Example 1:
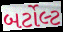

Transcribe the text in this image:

બર્ટોલ્ટ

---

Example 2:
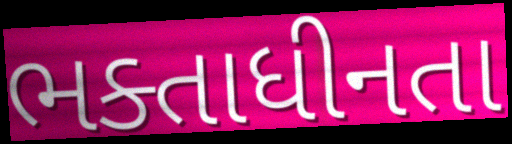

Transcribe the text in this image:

ભક્તાધીનતા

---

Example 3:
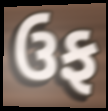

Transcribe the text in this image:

ઉફ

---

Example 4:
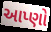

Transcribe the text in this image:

આપ્ણો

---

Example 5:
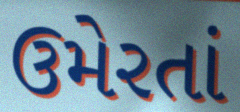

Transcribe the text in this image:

ઉમેરતાં